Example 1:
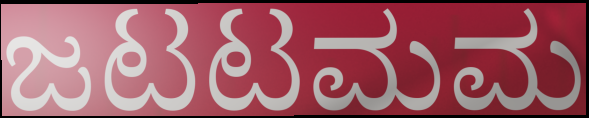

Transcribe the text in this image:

ಜಟಟಮಮ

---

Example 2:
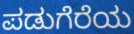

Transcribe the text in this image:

ಪಡುಗೆರೆಯ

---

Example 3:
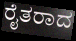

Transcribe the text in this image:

ರೈತರಾದ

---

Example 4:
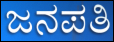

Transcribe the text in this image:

ಜನಪತಿ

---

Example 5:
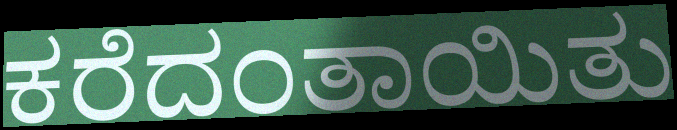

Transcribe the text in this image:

ಕರೆದಂತಾಯಿತು